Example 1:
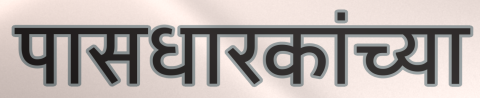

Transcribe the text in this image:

पासधारकांच्या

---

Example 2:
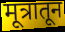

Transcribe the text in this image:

मूत्रातून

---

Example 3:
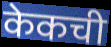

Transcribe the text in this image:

केकची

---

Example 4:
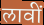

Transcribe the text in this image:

लावीं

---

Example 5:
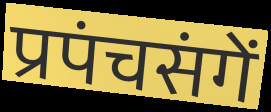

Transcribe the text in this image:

प्रपंचसंगें